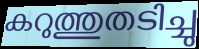
കറുത്തുതടിച്ചു